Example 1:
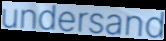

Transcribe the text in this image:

undersand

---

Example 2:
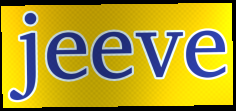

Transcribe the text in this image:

jeeve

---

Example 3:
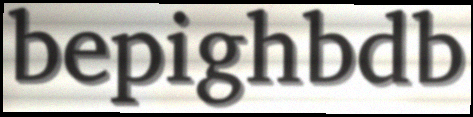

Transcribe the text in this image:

bepighbdb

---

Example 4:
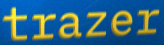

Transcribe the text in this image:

trazer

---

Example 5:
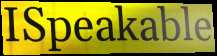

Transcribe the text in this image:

ISpeakable